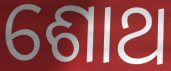
ଶୋଥ